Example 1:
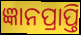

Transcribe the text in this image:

ଜ୍ଞାନପ୍ରାପ୍ତି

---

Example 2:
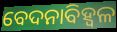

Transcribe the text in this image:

ବେଦନାବିହ୍ୱଳ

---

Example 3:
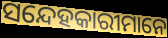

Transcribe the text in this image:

ସନ୍ଦେହକାରୀମାନେ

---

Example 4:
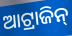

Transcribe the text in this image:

ଆଟ୍ରାଜିନ୍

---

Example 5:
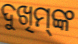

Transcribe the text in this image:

ଦୁଖିମ୍‌ଙ୍କ